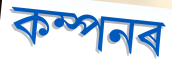
কম্পনৰ